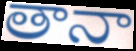
తానా